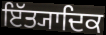
ਇੱਤ੍ਯਾਦਿਕ